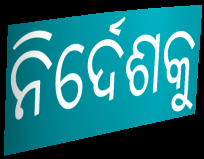
ନିର୍ଦେଶକୁ